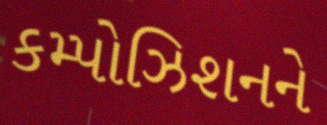
કમ્પોઝિશનને